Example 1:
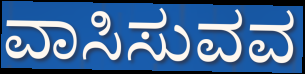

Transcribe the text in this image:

ವಾಸಿಸುವವ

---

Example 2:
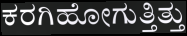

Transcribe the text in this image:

ಕರಗಿಹೋಗುತ್ತಿತ್ತು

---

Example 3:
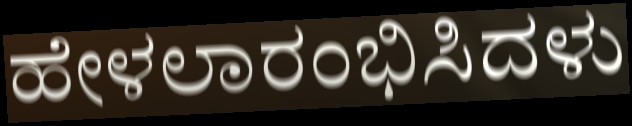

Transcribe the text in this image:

ಹೇಳಲಾರಂಭಿಸಿದಳು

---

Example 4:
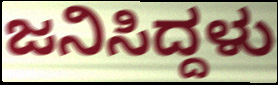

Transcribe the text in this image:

ಜನಿಸಿದ್ದಳು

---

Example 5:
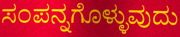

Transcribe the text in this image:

ಸಂಪನ್ನಗೊಳ್ಳುವುದು